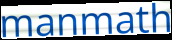
manmath